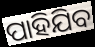
ପାହିଯିବ